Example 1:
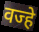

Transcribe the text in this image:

वज्हे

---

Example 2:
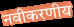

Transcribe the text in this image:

नवीकरणीय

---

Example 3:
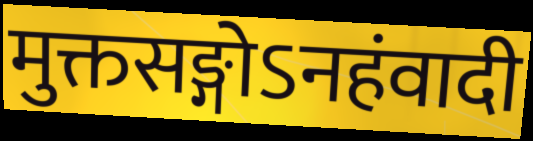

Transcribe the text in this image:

मुक्तसङ्गोऽनहंवादी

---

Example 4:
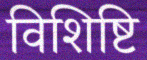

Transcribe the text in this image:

विशिष्टि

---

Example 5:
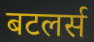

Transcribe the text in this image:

बटलर्स